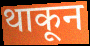
थाकून